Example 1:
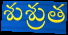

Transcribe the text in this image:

శుశ్రుత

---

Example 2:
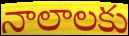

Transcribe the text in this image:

నాలాలకు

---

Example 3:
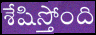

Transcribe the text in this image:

శేషిస్తోంది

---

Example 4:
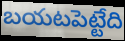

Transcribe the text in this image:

బయటపెట్టేది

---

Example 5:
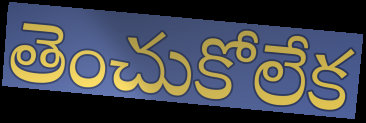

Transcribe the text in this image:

తెంచుకోలేక